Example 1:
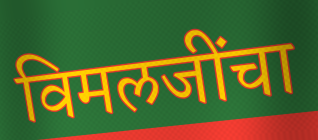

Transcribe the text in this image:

विमलजींचा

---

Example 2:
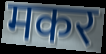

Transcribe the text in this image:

मकर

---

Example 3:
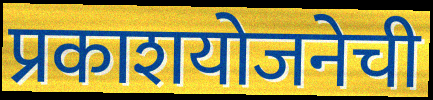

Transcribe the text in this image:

प्रकाशयोजनेची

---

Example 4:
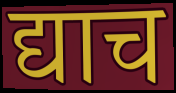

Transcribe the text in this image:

द्याच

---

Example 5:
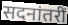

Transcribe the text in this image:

सदनांतरीं